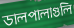
ডালপালাগুলি